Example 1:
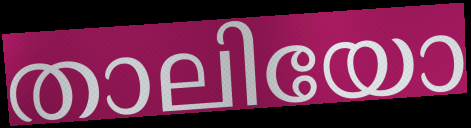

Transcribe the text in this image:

താലിയോ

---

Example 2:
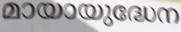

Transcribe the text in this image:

മായായുദ്ധേന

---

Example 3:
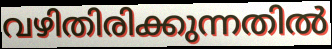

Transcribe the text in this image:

വഴിതിരിക്കുന്നതിൽ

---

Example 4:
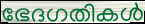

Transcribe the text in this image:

ഭേദഗതികൾ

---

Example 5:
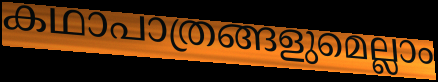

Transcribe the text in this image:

കഥാപാത്രങ്ങളുമെല്ലാം